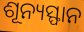
ଶୂନ୍ୟସ୍ଫାନ